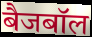
बैजबॉल